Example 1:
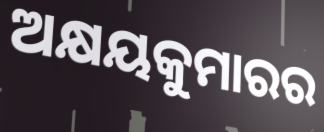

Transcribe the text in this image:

ଅକ୍ଷୟକୁମାରର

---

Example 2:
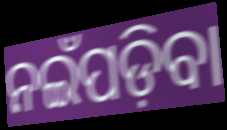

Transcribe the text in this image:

ନଇଁପଡ଼ିବା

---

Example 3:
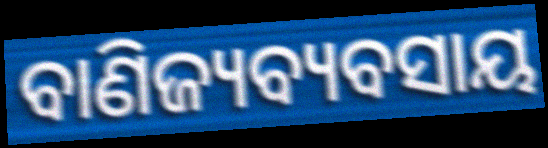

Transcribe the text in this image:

ବାଣିଜ୍ୟବ୍ୟବସାୟ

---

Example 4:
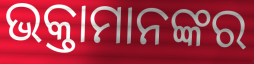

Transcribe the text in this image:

ଭକ୍ତାମାନଙ୍କର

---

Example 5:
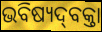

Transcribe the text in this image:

ଭବିଷ୍ୟଦ୍‌ବକ୍ତା